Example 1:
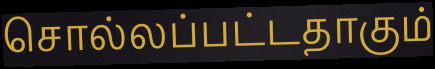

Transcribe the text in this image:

சொல்லப்பட்டதாகும்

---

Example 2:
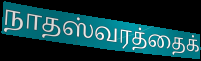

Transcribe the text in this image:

நாதஸ்வரத்தைக்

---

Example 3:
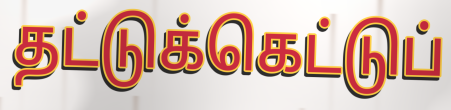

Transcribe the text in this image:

தட்டுக்கெட்டுப்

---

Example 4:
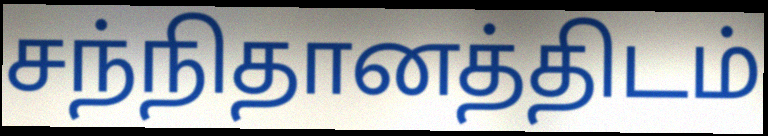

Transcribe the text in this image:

சந்நிதானத்திடம்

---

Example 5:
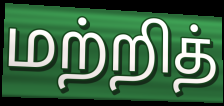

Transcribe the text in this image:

மற்றித்